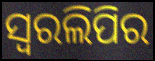
ସ୍ୱରଲିପିର